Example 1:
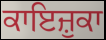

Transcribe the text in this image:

ਕਾਇਜ਼ੁਕਾ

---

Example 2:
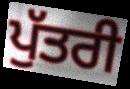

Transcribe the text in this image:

ਪੁੱਤਰੀ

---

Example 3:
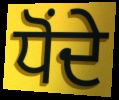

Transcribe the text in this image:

ਧੋਂਦੇ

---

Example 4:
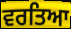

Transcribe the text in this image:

ਵਰਤਿਆ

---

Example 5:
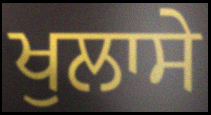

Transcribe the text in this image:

ਖੁਲਾਸੇ